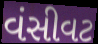
વંસીવટ